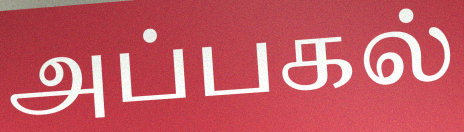
அப்பகல்